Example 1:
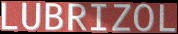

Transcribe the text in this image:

LUBRIZOL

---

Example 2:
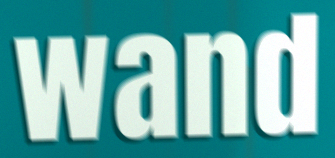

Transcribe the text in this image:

wand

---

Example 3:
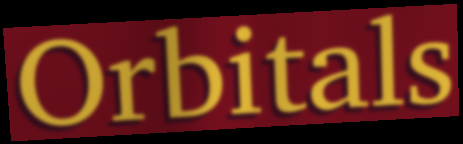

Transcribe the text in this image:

Orbitals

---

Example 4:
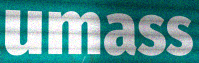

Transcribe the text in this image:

umass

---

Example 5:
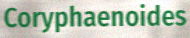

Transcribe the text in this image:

Coryphaenoides